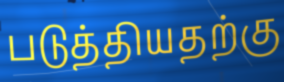
படுத்தியதற்கு